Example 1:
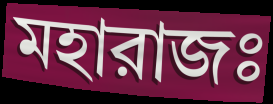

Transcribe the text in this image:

মহারাজঃ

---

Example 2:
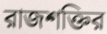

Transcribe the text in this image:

রাজশক্তির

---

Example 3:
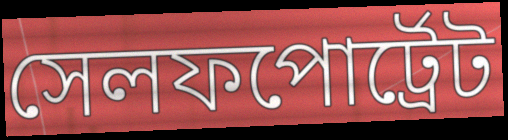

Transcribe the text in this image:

সেলফপোর্ট্রেট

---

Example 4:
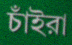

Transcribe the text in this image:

চাঁইরা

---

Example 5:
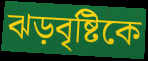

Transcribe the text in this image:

ঝড়বৃষ্টিকে